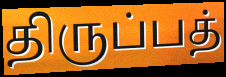
திருப்பத்